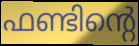
ഫണ്ടിന്റെ